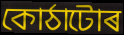
কোঠাটোৰ